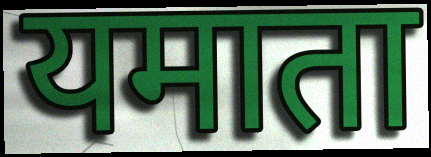
यमाता